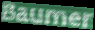
Baumer